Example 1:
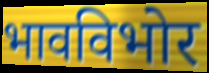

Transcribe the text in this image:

भावविभोर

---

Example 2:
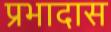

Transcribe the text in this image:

प्रभादास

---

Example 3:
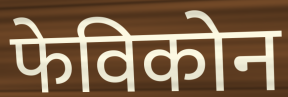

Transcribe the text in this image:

फेविकोन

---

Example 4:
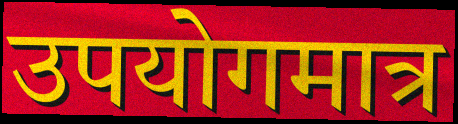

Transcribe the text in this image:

उपयोगमात्र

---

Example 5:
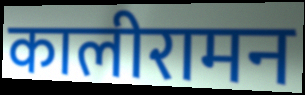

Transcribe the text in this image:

कालीरामन